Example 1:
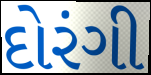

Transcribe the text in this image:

દોરંગી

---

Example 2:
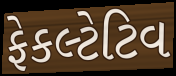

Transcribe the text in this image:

ફેકલ્ટેટિવ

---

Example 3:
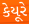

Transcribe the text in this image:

કેયૂરે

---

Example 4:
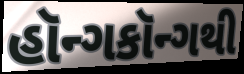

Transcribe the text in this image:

હૉન્ગકૉન્ગથી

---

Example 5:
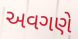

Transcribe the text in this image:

અવગણે